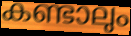
കണ്ടാലും